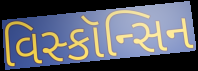
વિસ્કૉન્સિન